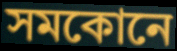
সমকোনে